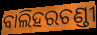
ବାଲିହରଚଣ୍ଡୀ